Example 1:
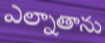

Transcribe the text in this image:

ఎల్నాతాను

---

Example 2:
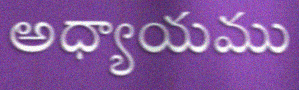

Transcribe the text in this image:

అధ్యాయము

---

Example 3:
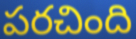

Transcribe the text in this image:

పరచింది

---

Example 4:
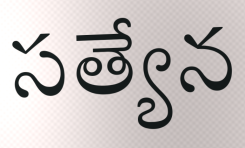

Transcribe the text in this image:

సత్యేన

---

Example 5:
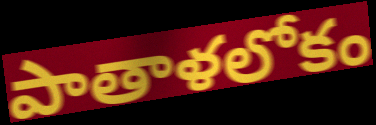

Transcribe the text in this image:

పాతాళలోకం